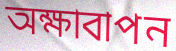
অক্ষাবাপন